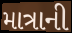
માત્રાની